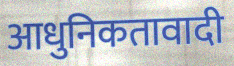
आधुनिकतावादी